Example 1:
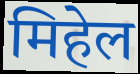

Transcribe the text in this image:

मिहेल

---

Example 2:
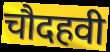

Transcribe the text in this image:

चौदहवी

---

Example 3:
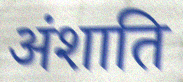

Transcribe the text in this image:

अंशाति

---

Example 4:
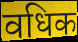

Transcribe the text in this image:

वधिक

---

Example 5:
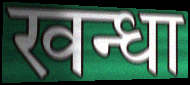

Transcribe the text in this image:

खन्धा